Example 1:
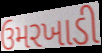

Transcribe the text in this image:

ઉમરખાડી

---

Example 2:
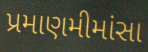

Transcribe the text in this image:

પ્રમાણમીમાંસા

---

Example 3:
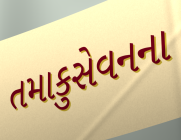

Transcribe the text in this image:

તમાકુસેવનના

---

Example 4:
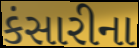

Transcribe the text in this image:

કંસારીના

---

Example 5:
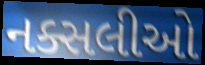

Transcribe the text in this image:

નક્સલીઓ